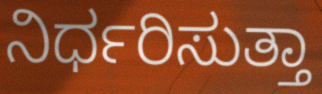
ನಿರ್ಧರಿಸುತ್ತಾ